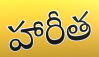
హారీత